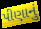
પીણાનું